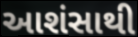
આશંસાથી